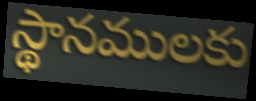
స్థానములకు